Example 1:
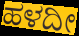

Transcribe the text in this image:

ಹಳದೀ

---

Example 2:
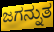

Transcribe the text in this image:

ಜಗನ್ನುತ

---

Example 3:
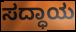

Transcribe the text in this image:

ಸದ್ಧಾಯ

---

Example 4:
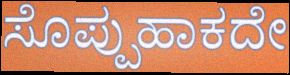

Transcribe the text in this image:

ಸೊಪ್ಪುಹಾಕದೇ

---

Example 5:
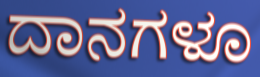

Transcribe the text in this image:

ದಾನಗಳೂ